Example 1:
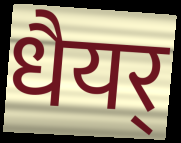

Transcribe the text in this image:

धैयर्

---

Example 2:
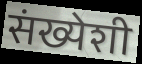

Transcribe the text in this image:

संख्येशी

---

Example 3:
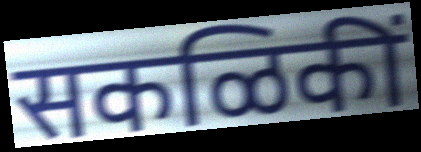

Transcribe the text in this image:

सकळिकीं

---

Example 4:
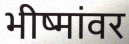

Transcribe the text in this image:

भीष्मांवर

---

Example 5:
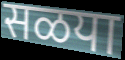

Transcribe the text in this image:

सळया